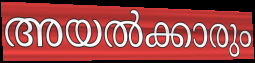
അയൽക്കാരും